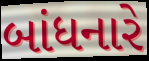
બાંધનારે